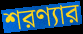
শরণ্যার